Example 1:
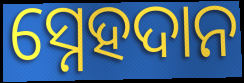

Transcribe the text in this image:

ସ୍ନେହଦାନ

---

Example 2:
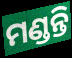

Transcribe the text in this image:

ମଣ୍ଡନ୍ତି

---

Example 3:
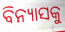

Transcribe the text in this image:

ବିନ୍ୟାସକୁ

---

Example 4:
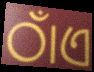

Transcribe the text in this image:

ଠାଁଏ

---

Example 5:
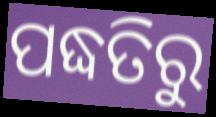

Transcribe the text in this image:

ପଦ୍ଧତିରୁ